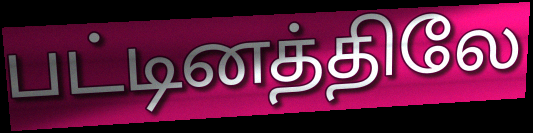
பட்டினத்திலே